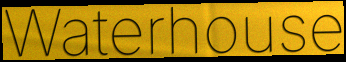
Waterhouse